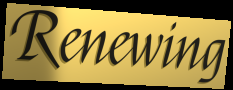
Renewing